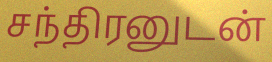
சந்திரனுடன்